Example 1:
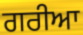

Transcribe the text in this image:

ਗਰੀਆ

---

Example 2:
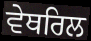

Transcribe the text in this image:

ਵੇਥਰਿਲ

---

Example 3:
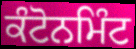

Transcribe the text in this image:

ਕੰਟੋਨਮਿੰਟ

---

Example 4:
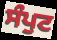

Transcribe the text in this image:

ਸੰਪੁਟ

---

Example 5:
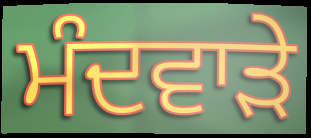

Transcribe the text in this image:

ਮੰਦਵਾੜੇ